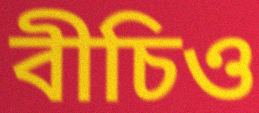
বীচিও